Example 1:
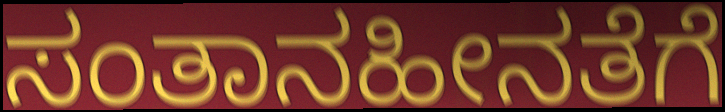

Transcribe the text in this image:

ಸಂತಾನಹೀನತೆಗೆ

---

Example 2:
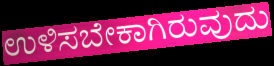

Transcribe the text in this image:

ಉಳಿಸಬೇಕಾಗಿರುವುದು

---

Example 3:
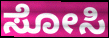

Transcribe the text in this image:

ಸೋಸಿ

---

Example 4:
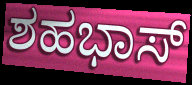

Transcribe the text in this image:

ಶಹಭಾಸ್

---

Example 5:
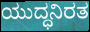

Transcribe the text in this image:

ಯುದ್ಧನಿರತ